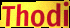
Thodi